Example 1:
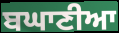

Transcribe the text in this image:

ਬਘਾਣੀਆ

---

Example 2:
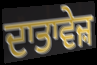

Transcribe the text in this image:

ਦਾਤਾਵੇਜ਼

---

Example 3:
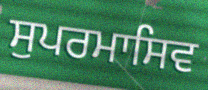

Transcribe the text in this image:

ਸੁਪਰਮਾਸਿਵ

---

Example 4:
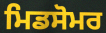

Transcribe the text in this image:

ਮਿਡਸੋਮਰ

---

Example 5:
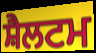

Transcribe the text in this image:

ਸ਼ੈਲਟਮ